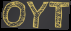
OYT